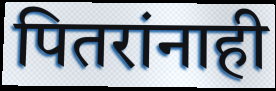
पितरांनाही